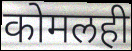
कोमलही